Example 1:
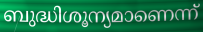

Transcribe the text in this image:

ബുദ്ധിശൂന്യമാണെന്ന്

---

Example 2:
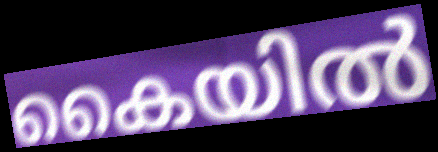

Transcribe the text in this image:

കൈയിൽ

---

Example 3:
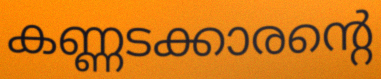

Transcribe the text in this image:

കണ്ണടക്കാരന്റെ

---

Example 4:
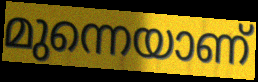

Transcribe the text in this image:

മുന്നെയാണ്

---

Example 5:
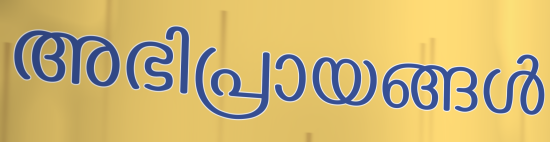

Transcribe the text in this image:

അഭിപ്രായങ്ങൾ